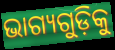
ଭାଗ୍ୟଗୁଡ଼ିକୁ